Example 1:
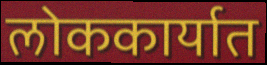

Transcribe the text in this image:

लोककार्यात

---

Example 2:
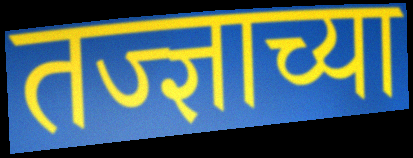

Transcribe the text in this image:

तज्ज्ञाच्या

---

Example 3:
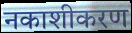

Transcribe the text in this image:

नकाशीकरण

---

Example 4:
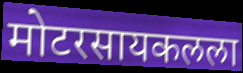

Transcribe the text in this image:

मोटरसायकलला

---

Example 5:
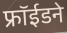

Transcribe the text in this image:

फ्रॉईडने